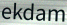
ekdam